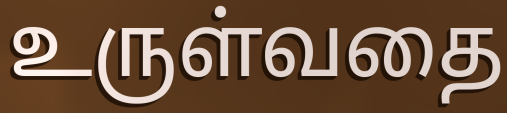
உருள்வதை